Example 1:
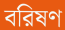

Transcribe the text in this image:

বরিষণ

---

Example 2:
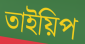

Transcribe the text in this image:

তাইয়িপ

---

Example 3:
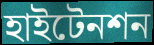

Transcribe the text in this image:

হাইটেনশন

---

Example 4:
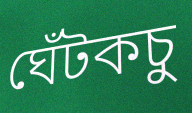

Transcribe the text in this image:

ঘেঁটকচু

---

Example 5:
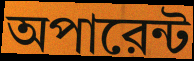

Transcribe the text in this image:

অপারেন্ট